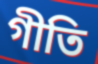
গীতি